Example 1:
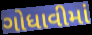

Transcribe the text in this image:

ગોધાવીમાં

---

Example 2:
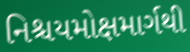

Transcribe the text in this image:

નિશ્ચયમોક્ષમાર્ગથી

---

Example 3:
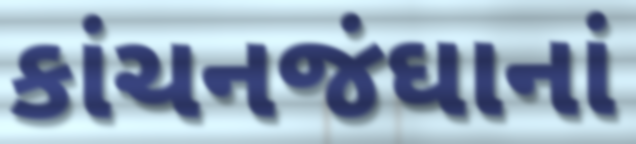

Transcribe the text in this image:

કાંચનજંઘાનાં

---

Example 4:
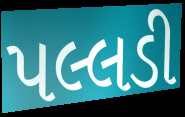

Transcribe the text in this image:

પલ્લડી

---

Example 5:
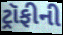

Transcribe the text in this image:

ટ્રૉફીની